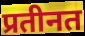
प्रतीनत